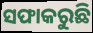
ସଫାକରୁଛି